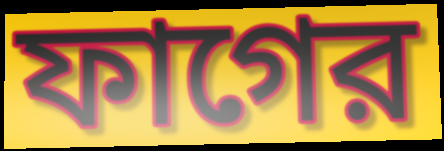
ফাগের